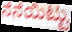
ನೆನೆಯಿಟ್ಟು